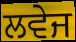
ਲਵੇਜ